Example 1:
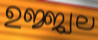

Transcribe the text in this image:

ഉജ്ജ്വല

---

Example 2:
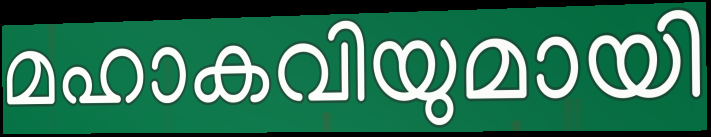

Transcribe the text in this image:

മഹാകവിയുമായി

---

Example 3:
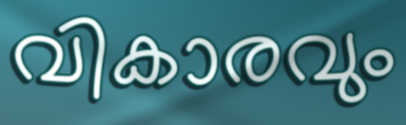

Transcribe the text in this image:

വികാരവും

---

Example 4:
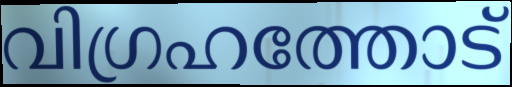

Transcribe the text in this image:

വിഗ്രഹത്തോട്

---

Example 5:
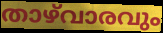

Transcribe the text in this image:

താഴ്‌വാരവും